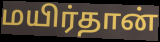
மயிர்தான்